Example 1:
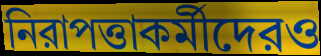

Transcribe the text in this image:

নিরাপত্তাকর্মীদেরও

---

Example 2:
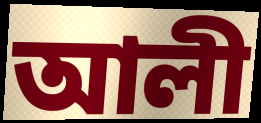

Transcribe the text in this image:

আলী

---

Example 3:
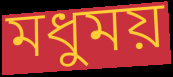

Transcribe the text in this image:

মধুময়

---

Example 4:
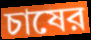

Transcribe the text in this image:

চাষের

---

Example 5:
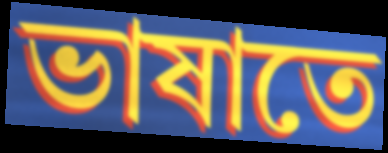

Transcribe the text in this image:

ভাষাতে